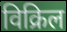
विक्रिल